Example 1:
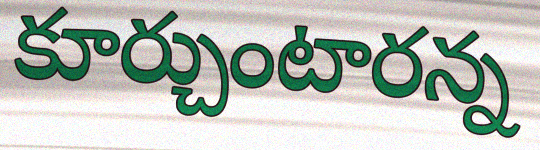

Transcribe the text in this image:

కూర్చుంటారన్న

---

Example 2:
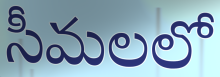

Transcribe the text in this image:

సీమలలో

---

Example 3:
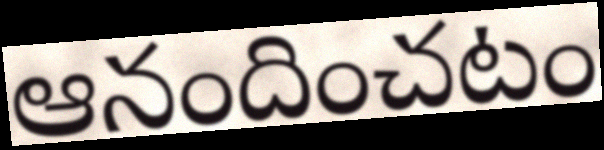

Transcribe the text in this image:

ఆనందించటం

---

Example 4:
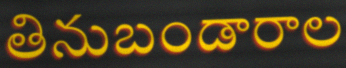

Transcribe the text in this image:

తినుబండారాల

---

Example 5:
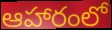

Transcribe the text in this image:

ఆహారంలో